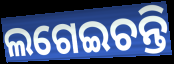
ଲଗେଇଚନ୍ତି